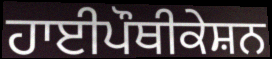
ਹਾਈਪੌਥੀਕੇਸ਼ਨ